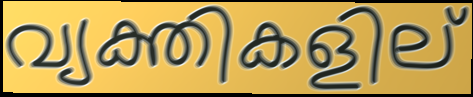
വ്യക്തികളില്